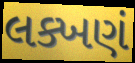
લક્ખણં